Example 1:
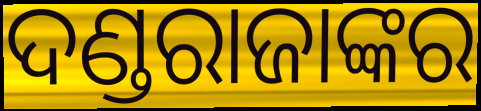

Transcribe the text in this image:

ଦଣ୍ଡରାଜାଙ୍କର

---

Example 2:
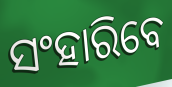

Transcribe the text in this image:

ସଂହାରିବେ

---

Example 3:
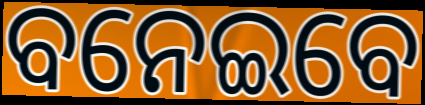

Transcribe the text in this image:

ବନେଇବେ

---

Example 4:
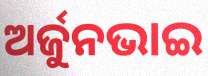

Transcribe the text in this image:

ଅର୍ଜୁନଭାଇ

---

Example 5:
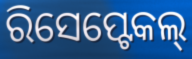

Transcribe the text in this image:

ରିସେପ୍ଟେକଲ୍